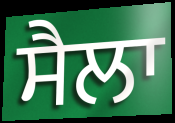
ਸੈਲਾ